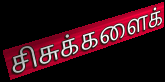
சிசுக்களைக்